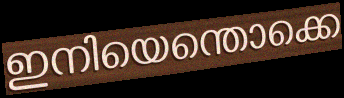
ഇനിയെന്തൊക്കെ